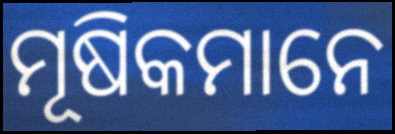
ମୂଷିକମାନେ